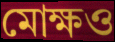
মোক্ষও